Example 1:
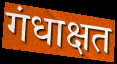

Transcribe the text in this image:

गंधाक्षत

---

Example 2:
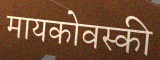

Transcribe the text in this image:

मायकोवस्की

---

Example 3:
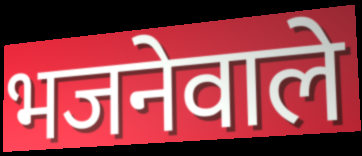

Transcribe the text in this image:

भजनेवाले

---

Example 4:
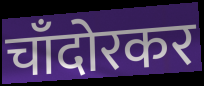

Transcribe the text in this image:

चाँदोरकर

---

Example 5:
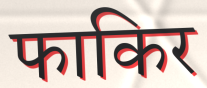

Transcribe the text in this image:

फाकिर